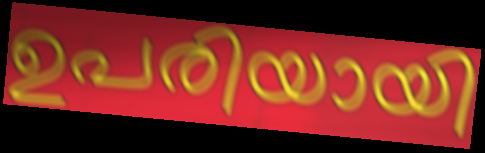
ഉപരിയായി